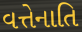
વત્તેનાતિ